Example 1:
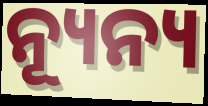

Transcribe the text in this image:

ନ୍ୟୂନ୍ୟ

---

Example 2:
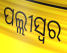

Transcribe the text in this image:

ପଲ୍ଲୀସ୍ଵର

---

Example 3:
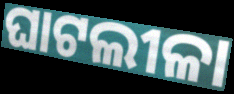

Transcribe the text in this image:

ଘାଟଲୀଳା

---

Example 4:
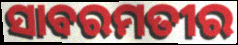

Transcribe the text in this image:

ସାବରମତୀର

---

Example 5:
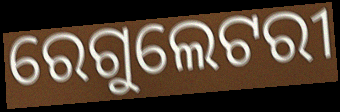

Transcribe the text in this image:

ରେଗୁଲେଟରୀ